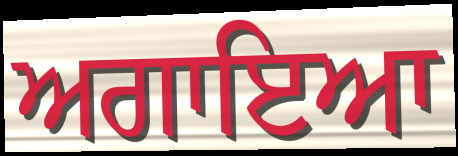
ਅਗਾਇਆ